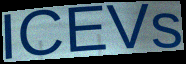
ICEVs